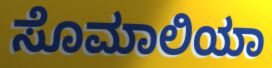
ಸೊಮಾಲಿಯಾ